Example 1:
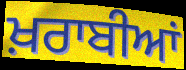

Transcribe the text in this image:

ਖ਼ਰਾਬੀਆਂ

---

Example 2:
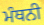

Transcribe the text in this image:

ਮੰਥਨੀ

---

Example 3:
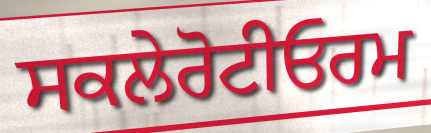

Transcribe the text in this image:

ਸਕਲੇਰੋਟੀਓਰਮ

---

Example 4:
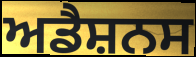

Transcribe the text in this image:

ਅਡੈਸ਼ਨਸ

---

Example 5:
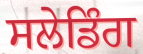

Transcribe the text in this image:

ਸਲੇਡਿੰਗ